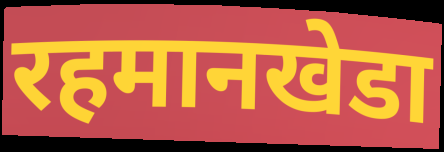
रहमानखेडा